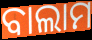
ବାଲାମ